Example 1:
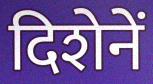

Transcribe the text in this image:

दिशेनें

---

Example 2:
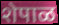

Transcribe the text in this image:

शेपाळ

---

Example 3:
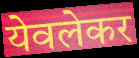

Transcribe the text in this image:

येवलेकर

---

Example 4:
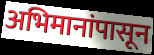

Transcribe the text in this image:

अभिमानांपासून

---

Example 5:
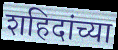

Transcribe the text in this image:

शहिदांच्या